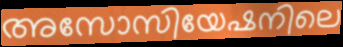
അസോസിയേഷനിലെ